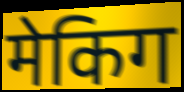
मेकिग